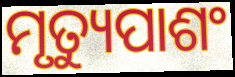
ମୃତ୍ୟୁପାଶଂ